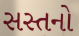
સસ્તનો